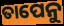
ତାପେନୁ